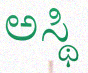
ಅಸ್ಥಿ